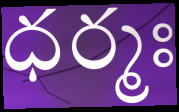
ధర్మః